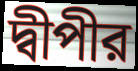
দ্বীপীর